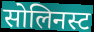
सोलिनस्ट